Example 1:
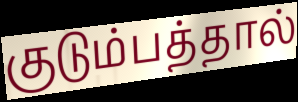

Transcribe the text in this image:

குடும்பத்தால்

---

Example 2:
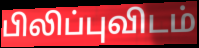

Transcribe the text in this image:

பிலிப்புவிடம்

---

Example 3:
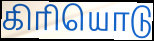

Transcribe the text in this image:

கிரியொடு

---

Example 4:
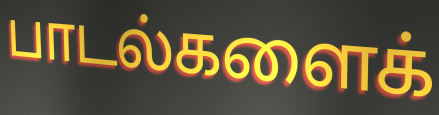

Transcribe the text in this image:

பாடல்களைக்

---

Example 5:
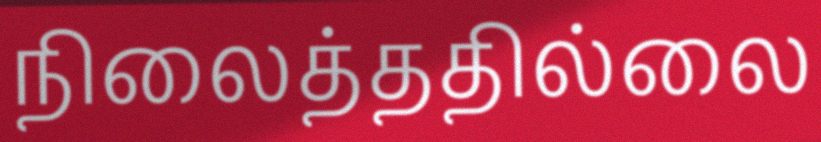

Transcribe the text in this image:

நிலைத்ததில்லை